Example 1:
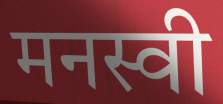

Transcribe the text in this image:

मनस्वी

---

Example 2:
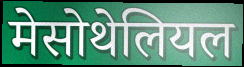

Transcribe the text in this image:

मेसोथेलियल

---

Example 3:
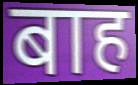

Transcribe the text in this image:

बाह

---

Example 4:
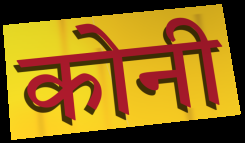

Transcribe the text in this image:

कोनी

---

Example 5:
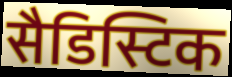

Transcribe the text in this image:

सैडिस्टिक